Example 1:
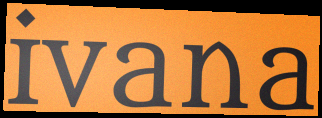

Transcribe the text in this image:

ivana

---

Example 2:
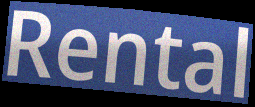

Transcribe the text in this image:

Rental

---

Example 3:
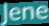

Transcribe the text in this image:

Jene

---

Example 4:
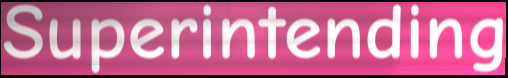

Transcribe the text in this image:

Superintending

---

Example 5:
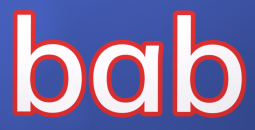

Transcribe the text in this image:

bab